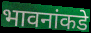
भावनांकडे